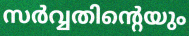
സർവ്വതിന്റെയും